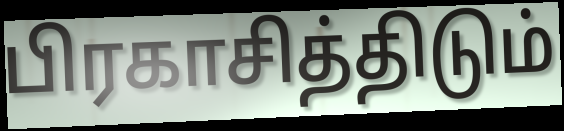
பிரகாசித்திடும்